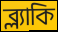
ব্ল্যাকি